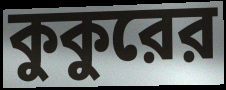
কুকুরের